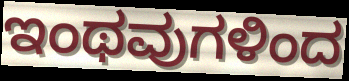
ಇಂಥವುಗಳಿಂದ